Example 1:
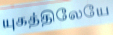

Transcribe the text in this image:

யுகத்திலேயே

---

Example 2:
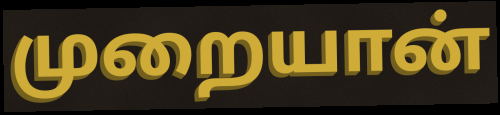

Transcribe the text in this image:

முறையான்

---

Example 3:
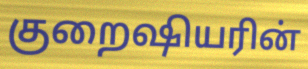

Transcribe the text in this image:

குறைஷியரின்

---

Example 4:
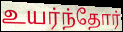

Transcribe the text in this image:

உயர்ந்தோர்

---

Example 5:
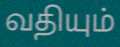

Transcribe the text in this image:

வதியும்